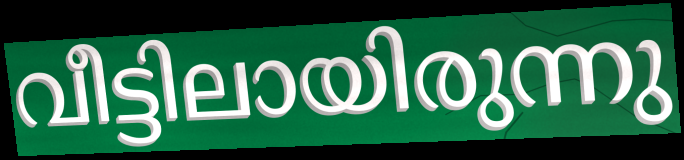
വീട്ടിലായിരുന്നു